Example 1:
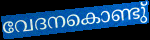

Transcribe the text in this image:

വേദനകൊണ്ടു്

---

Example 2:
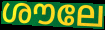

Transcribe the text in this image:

ശൗലേ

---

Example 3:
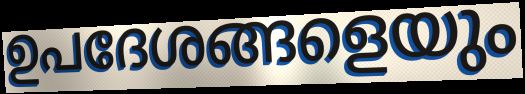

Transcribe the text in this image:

ഉപദേശങ്ങളെയും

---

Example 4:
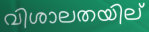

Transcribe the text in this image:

വിശാലതയില്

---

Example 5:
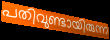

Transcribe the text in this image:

പതിവുണ്ടായിരുന്ന